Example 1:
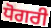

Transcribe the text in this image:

ਧੋਗਰੀ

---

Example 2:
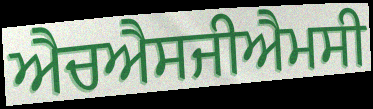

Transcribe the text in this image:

ਐਚਐਸਜੀਐਮਸੀ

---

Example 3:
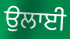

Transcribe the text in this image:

ਉਲਾਈ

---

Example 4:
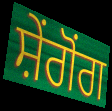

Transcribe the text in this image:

ਸ਼ੇਂਗੋਂਗ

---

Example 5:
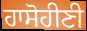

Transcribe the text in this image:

ਹਾਸੋਹੀਣੀ